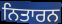
ਨਿਤਾਰਨ